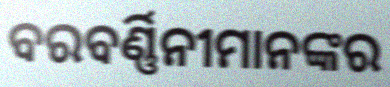
ବରବର୍ଣ୍ଣିନୀମାନଙ୍କର